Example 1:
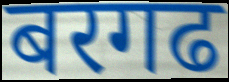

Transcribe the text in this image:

बरगढ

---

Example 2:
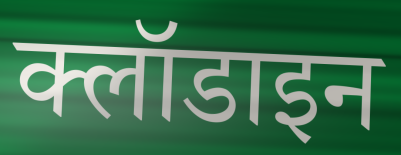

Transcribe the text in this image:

क्लॉडाइन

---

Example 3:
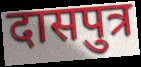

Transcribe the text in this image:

दासपुत्र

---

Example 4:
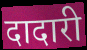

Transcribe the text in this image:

दादारी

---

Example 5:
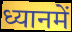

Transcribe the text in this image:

ध्यानमें